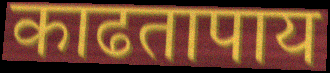
काढतापाय